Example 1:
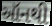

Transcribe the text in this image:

ઑનથી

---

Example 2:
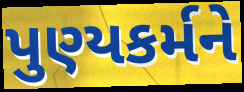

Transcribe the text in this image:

પુણ્યકર્મને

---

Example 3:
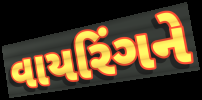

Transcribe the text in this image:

વાયરિંગને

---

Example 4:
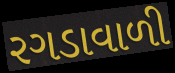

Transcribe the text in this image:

રગડાવાળી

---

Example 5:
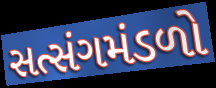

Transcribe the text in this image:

સત્સંગમંડળો